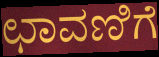
ಛಾವಣಿಗೆ